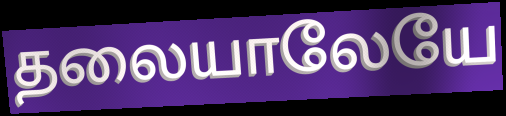
தலையாலேயே